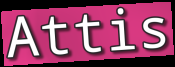
Attis